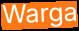
Warga